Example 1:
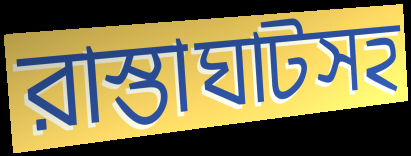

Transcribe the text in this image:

রাস্তাঘাটসহ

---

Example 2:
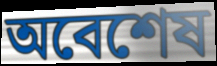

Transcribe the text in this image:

অবেশেষ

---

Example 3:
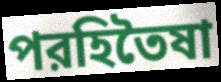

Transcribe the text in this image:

পরহিতৈষা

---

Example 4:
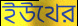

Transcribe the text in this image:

ইউথের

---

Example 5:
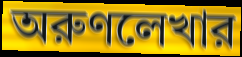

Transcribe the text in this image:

অরুণলেখার